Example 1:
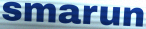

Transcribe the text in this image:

smarun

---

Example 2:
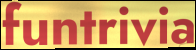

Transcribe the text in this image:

funtrivia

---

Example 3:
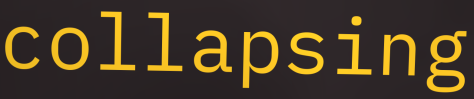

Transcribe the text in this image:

collapsing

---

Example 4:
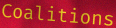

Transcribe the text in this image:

Coalitions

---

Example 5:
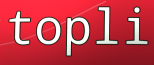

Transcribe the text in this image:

topli